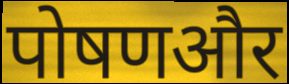
पोषणऔर